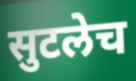
सुटलेच